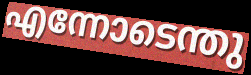
എന്നോടെന്തു